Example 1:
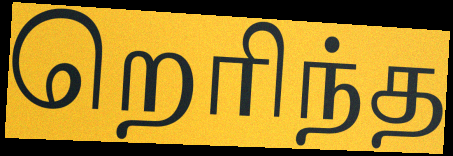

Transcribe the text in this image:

றெரிந்த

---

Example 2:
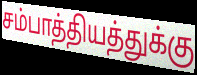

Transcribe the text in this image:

சம்பாத்தியத்துக்கு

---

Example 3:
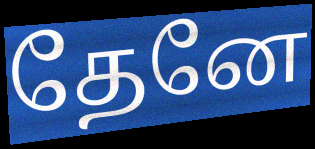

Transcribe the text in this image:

தேனே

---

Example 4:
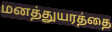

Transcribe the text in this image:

மனத்துயரத்தை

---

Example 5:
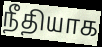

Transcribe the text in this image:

நீதியாக